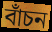
বাঁচন